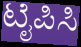
ಟೈಪಿಸಿ